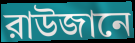
রাউজানে